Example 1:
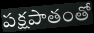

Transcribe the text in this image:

పక్షపాతంతో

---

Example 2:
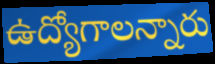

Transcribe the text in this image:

ఉద్యోగాలన్నారు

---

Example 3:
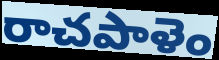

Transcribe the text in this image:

రాచపాళెం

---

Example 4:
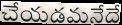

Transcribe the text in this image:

చేయడమనేదే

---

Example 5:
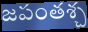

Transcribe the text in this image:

జపంతశ్చ